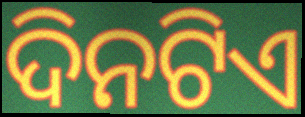
ଦିନଟିଏ